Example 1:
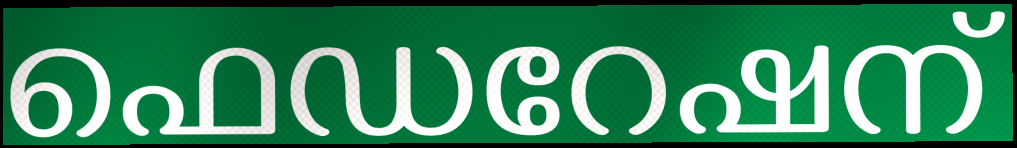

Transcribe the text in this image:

ഫെഡറേഷന്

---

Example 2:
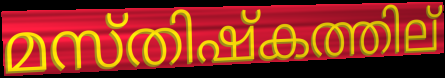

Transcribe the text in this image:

മസ്തിഷ്കത്തില്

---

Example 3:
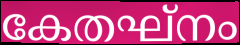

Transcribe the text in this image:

കേതഘ്നം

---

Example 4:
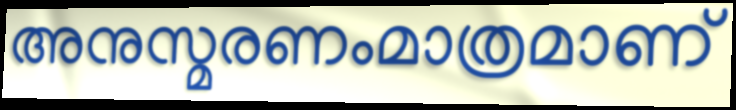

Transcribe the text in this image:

അനുസ്മരണംമാത്രമാണ്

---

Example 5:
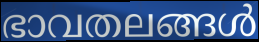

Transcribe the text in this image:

ഭാവതലങ്ങൾ